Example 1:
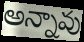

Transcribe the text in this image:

అన్నావు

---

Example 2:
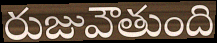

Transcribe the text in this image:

రుజువౌతుంది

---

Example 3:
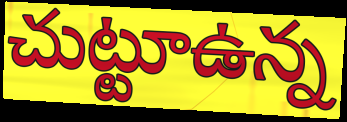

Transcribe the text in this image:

చుట్టూఉన్న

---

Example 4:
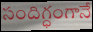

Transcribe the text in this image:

సందిగ్ధంగానే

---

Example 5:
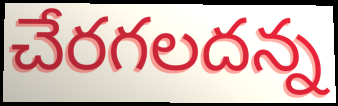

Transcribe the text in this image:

చేరగలదన్న